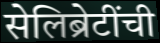
सेलिब्रेटींची